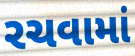
રચવામાં